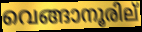
വെങ്ങാനൂരില്